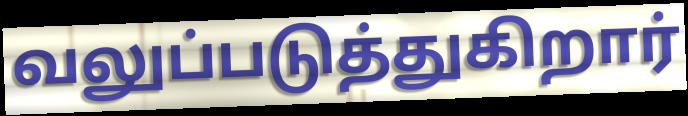
வலுப்படுத்துகிறார்